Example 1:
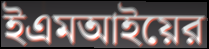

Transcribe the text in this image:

ইএমআইয়ের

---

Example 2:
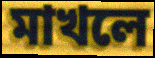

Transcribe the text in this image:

মাখলে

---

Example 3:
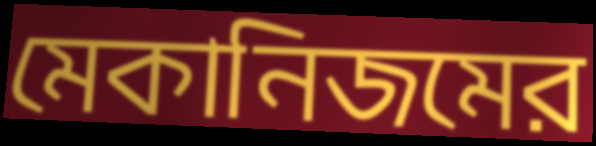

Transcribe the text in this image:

মেকানিজমের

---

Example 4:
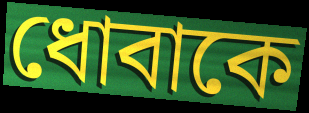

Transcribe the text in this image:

ধোবাকে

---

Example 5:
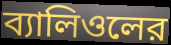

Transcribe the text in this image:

ব্যালিওলের